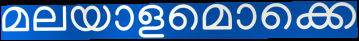
മലയാളമൊക്കെ